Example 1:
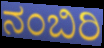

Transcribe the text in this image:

ನಂಬಿರಿ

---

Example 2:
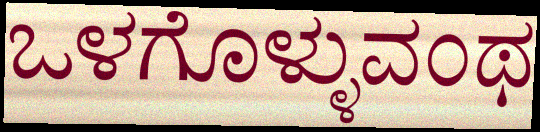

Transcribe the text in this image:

ಒಳಗೊಳ್ಳುವಂಥ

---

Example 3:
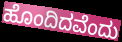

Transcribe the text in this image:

ಹೊಂದಿದವೆಂದು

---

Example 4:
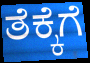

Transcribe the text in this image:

ತೆಕ್ಕೆಗೆ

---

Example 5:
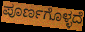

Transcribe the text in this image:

ಪೂರ್ಣಗೊಳ್ಳದೆ